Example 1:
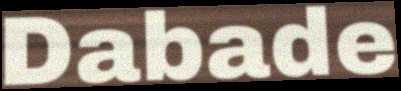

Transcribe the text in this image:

Dabade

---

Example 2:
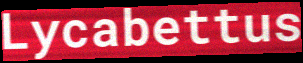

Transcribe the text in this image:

Lycabettus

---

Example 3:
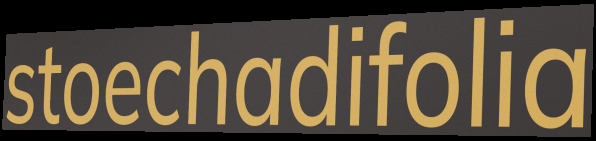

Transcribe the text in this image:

stoechadifolia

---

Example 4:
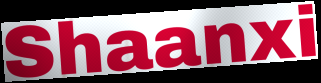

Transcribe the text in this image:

Shaanxi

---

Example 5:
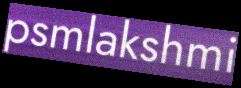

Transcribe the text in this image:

psmlakshmi